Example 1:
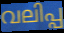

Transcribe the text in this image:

വലിപ്പ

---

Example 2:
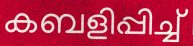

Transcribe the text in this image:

കബളിപ്പിച്ച്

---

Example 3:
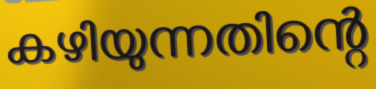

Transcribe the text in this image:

കഴിയുന്നതിന്റെ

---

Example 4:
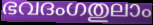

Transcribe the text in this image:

ഭവദംഗതുലാം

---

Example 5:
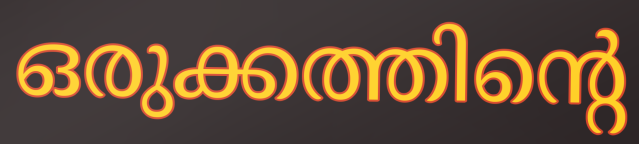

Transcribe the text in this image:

ഒരുക്കത്തിന്റെ